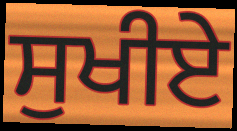
ਸੁਖੀਏ